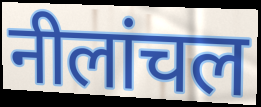
नीलांचल